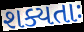
શક્યતાઃ